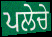
ਪਲੇਚੇ